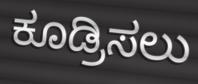
ಕೂಡ್ರಿಸಲು